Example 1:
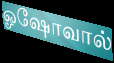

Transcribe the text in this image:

ஓஷோவால்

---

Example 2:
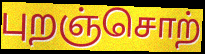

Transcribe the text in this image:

புறஞ்சொற்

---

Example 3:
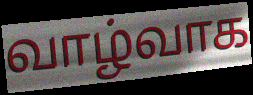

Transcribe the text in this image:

வாழ்வாக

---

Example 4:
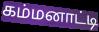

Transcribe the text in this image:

கம்மனாட்டி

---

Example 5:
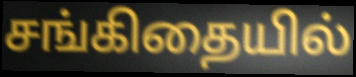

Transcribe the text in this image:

சங்கிதையில்